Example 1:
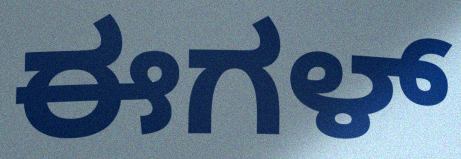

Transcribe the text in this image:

ಈಗಳ್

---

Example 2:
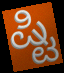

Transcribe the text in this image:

ಷ್ಟಿ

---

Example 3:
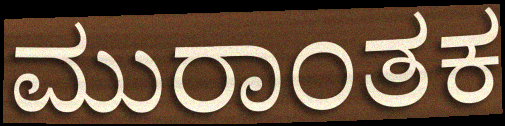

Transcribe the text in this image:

ಮುರಾಂತಕ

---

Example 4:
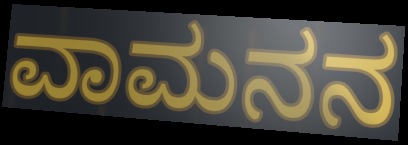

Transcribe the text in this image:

ವಾಮನನ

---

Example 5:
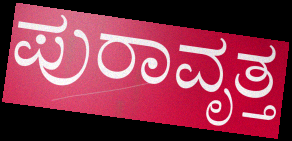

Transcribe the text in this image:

ಪುರಾವೃತ್ತ